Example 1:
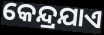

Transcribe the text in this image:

କେନ୍ଦ୍ରଯାଏ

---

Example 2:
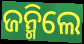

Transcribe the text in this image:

ଜନ୍ମିଲେ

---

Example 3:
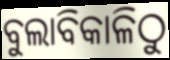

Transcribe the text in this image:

ବୁଲାବିକାଳିଠୁ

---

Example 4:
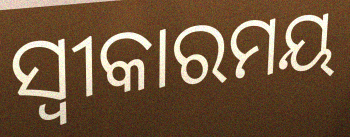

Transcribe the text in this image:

ସ୍ଵୀକାରମୟ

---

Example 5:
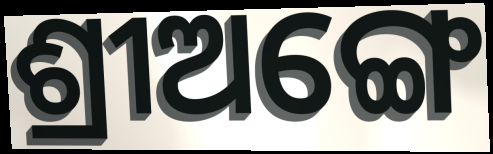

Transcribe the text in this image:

ଶ୍ରୀଅଙ୍ଗେ